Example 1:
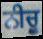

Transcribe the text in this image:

ਨੀਚੂ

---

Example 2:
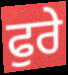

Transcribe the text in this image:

ਫੁਰੇ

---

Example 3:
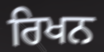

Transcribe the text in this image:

ਰਿਖਨ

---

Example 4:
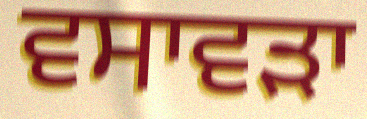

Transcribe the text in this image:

ਵਸਾਵੜਾ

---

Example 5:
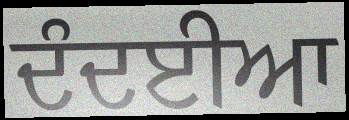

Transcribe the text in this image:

ਦੰਦਈਆ